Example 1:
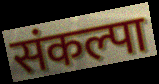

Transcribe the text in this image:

संकल्पा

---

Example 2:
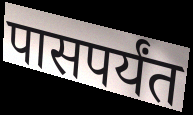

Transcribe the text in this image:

पासपर्यंत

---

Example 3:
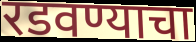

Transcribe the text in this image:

रडवण्याचा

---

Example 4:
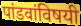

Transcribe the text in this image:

पांडवांविषयी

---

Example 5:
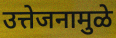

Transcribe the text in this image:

उत्तेजनामुळे